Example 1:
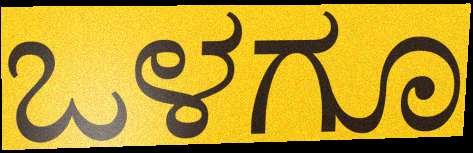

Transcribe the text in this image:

ಒಳಗೂ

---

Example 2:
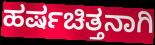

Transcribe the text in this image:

ಹರ್ಷಚಿತ್ತನಾಗಿ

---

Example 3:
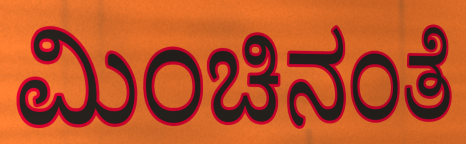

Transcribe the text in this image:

ಮಿಂಚಿನಂತೆ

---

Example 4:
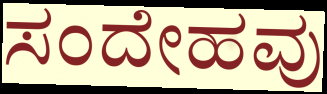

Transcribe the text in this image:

ಸಂದೇಹವು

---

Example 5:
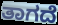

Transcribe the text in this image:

ತಾಗದೆ